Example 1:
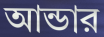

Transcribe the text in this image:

আন্ডার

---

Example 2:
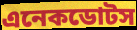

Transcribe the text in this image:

এনেকডোটস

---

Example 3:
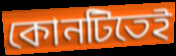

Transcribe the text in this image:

কোনটিতেই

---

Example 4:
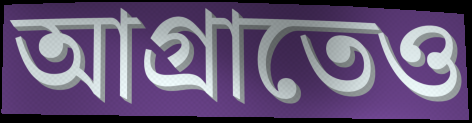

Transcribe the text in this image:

আগ্রাতেও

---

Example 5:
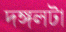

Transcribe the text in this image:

দঙ্গলটা